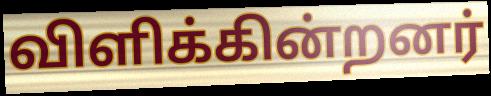
விளிக்கின்றனர்